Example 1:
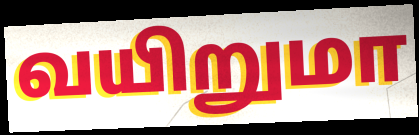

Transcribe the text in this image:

வயிறுமா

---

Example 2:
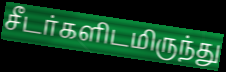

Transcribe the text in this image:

சீடர்களிடமிருந்து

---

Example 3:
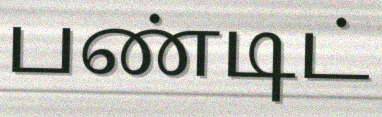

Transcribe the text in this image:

பண்டிட்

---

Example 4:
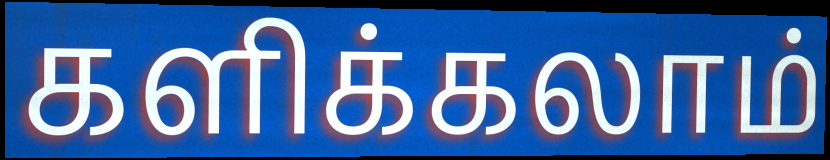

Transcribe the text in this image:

களிக்கலாம்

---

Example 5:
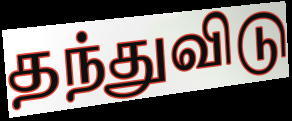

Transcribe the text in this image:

தந்துவிடு